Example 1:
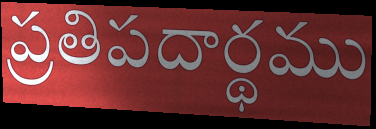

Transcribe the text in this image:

ప్రతిపదార్థము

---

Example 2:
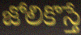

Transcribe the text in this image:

జోలికొస్తే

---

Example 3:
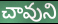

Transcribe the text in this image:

చావుని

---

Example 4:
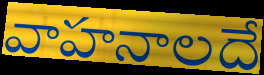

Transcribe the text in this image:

వాహనాలదే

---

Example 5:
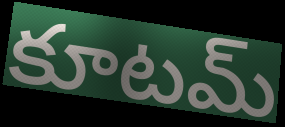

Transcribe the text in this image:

కూటమ్